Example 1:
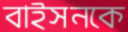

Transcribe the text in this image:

বাইসনকে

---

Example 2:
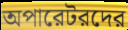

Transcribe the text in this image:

অপারেটরদের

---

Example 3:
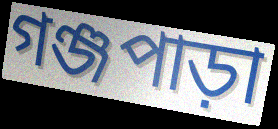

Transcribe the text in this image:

গঞ্জপাড়া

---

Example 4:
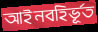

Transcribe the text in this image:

আইনবহির্ভূত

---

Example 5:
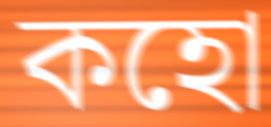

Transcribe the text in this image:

কহো